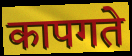
कापगते